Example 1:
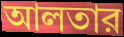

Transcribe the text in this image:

আলতার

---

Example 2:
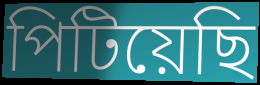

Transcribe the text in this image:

পিটিয়েছি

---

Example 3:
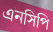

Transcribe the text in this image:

এনসিপি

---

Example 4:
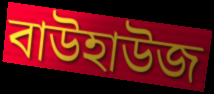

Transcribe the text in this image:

বাউহাউজ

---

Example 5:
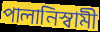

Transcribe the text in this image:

পালানিস্বামী